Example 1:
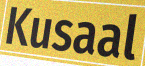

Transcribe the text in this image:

Kusaal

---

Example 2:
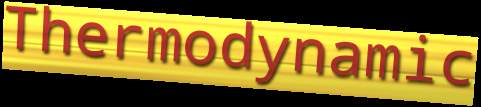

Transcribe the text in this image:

Thermodynamic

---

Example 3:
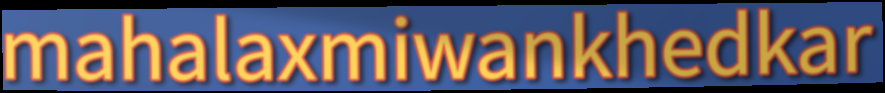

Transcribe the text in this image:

mahalaxmiwankhedkar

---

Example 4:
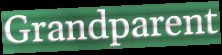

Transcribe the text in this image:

Grandparent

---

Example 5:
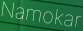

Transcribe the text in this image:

Namokar